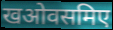
खओवसमिए